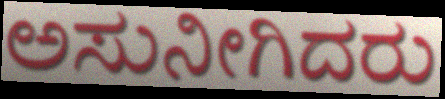
ಅಸುನೀಗಿದರು